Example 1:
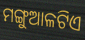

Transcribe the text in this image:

ମଙ୍ଗୁଆଳଟିଏ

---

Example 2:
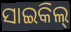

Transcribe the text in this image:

ସାଇକିଲ୍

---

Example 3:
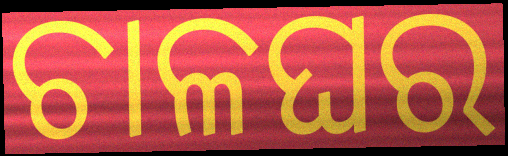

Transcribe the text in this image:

ଚାଳଘର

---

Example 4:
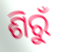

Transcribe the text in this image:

ଶିରୁଁ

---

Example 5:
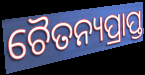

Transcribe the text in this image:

ଚୈତନ୍ୟପ୍ରାପ୍ତ